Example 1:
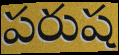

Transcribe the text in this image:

పరుష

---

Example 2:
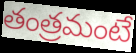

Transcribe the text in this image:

తంత్రమంటే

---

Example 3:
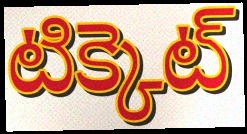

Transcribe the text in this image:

టిక్కెట్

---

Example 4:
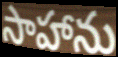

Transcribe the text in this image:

సాహాను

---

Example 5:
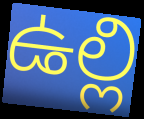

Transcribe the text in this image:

ఉల్లి